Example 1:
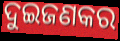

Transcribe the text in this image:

ଦୁଇଜଣକର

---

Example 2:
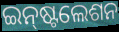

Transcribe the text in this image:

ଇନ୍‌ଷ୍ଟଲେଶନ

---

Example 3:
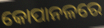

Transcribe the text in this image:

କୋପାନଳରେ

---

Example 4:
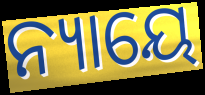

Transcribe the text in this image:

ନ୍ୟାୟେ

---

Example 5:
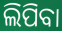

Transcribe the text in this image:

ଲିପିବା